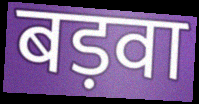
बड़वा